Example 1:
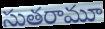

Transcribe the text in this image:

సుతరామూ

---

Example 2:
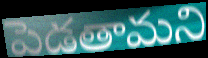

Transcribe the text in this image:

పెడతామని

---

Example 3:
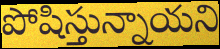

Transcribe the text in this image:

పోషిస్తున్నాయని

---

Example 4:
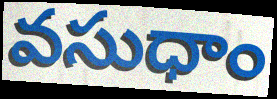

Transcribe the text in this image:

వసుధాం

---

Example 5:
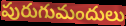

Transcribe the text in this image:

పురుగుమందులు